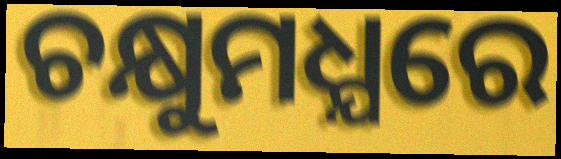
ଚକ୍ଷୁମଧ୍ଯରେ